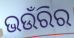
ଭଉଁରିର